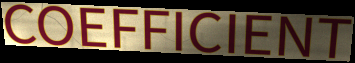
COEFFICIENT